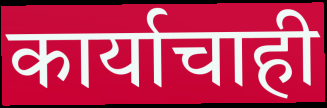
कार्याचाही